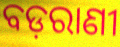
ବଡ଼ରାଣୀ